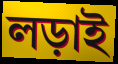
লড়াই